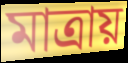
মাত্ৰায়